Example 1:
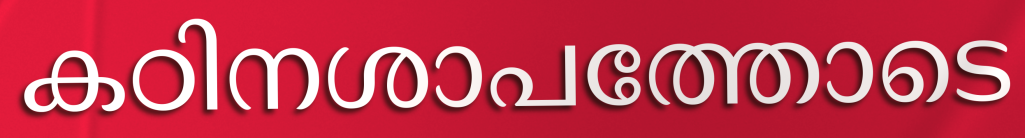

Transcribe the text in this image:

കഠിനശാപത്തോടെ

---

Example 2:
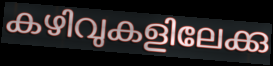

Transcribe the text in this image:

കഴിവുകളിലേക്കു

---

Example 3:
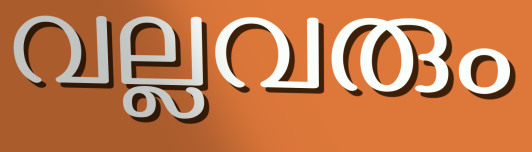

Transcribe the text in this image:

വല്ലവരും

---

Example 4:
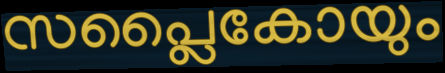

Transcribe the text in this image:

സപ്ലൈകോയും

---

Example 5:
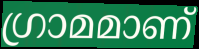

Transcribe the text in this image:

ഗ്രാമമാണ്